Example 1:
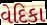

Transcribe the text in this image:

વેદિકા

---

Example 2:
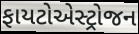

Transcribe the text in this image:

ફાયટોએસ્ટ્રોજન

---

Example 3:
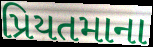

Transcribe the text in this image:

પ્રિયતમાના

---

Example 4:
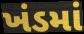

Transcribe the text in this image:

ખંડમાં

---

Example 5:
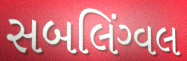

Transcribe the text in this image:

સબલિંગ્વલ